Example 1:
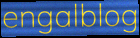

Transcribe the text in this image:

engalblog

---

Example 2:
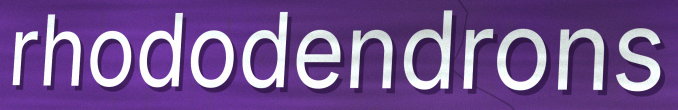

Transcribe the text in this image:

rhododendrons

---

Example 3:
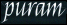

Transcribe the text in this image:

puram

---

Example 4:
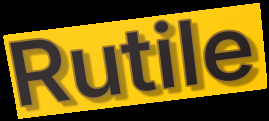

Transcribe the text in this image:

Rutile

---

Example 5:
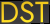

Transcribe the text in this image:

DST